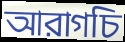
আরাগচি